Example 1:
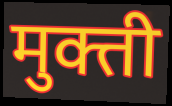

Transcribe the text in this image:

मुक्ती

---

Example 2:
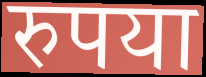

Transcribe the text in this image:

रुपया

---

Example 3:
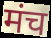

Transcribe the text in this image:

मंच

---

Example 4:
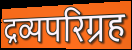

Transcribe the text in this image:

द्रव्यपरिग्रह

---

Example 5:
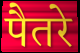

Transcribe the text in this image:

पैतरे